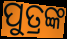
ପୁତ୍ରଙ୍କ